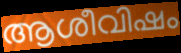
ആശീവിഷം